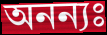
অনন্যঃ